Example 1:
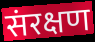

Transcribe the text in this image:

संरक्षण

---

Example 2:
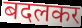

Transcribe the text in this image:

बदलकर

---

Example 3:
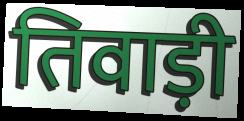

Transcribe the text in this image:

तिवाड़ी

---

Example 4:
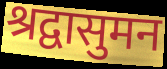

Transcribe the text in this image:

श्रद्वासुमन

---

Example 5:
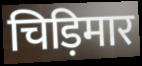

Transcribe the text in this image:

चिड़िमार